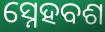
ସ୍ନେହବଶ